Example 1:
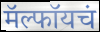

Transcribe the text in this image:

मॅल्फॉयचं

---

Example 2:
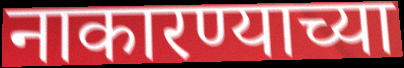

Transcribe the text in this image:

नाकारण्याच्या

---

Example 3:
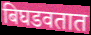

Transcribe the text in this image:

बिघडवतात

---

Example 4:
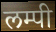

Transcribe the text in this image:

लम्पी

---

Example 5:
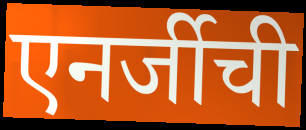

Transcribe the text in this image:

एनर्जीची